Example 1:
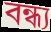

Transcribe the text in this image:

বন্ধ্য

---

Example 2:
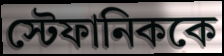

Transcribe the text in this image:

স্টেফানিককে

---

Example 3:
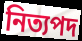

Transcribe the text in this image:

নিত্যপদ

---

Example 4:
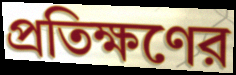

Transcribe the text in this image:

প্রতিক্ষণের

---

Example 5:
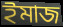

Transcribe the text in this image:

ইমাজ